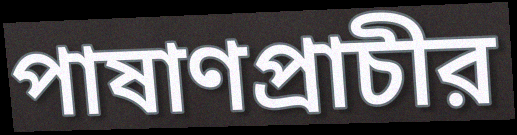
পাষাণপ্রাচীর